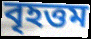
বৃহত্তম